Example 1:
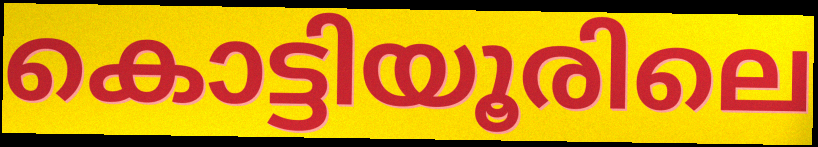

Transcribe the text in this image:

കൊട്ടിയൂരിലെ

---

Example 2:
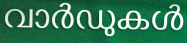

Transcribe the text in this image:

വാർഡുകൾ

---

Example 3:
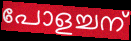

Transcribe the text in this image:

പോളച്ചന്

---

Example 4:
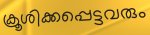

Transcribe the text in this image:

ക്രൂശിക്കപ്പെട്ടവരും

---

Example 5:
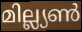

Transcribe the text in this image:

മില്ല്യൺ